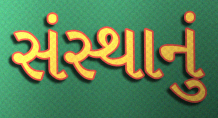
સંસ્થાનું